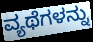
ವ್ಯಥೆಗಳನ್ನು